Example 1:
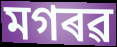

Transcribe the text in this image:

মগৰৱ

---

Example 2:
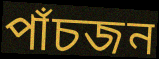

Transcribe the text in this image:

পাঁচজন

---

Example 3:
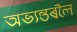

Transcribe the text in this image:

অভ্যন্তৰলৈ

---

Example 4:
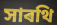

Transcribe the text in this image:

সাৰথি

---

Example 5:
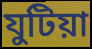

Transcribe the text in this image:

যুটিয়া